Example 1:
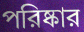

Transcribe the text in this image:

পরিষ্কার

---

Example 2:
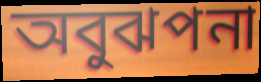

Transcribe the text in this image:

অবুঝপনা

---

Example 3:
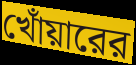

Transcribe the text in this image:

খোঁয়ারের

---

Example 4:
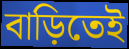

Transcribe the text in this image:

বাড়িতেই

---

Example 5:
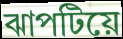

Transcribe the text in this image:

ঝাপটিয়ে